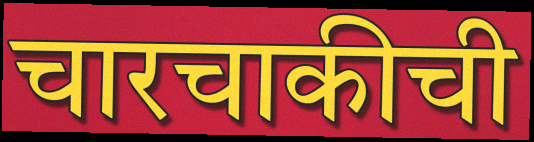
चारचाकीची